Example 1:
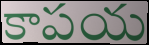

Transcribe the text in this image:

కాపయ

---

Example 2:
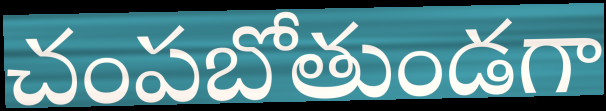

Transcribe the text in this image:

చంపబోతుండగా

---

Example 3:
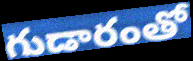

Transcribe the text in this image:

గుడారంతో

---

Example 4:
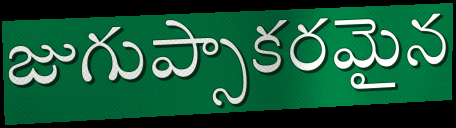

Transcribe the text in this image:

జుగుప్సాకరమైన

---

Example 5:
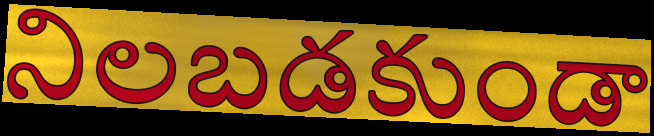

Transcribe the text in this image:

నిలబడకుండా